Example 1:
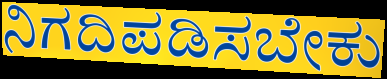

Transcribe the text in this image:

ನಿಗದಿಪಡಿಸಬೇಕು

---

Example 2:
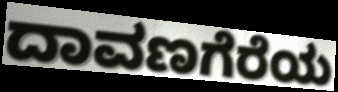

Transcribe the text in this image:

ದಾವಣಗೆರೆಯ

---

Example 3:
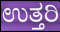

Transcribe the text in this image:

ಉತ್ತರಿ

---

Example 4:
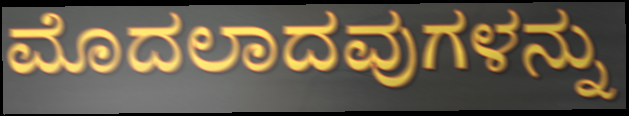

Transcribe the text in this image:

ಮೊದಲಾದವುಗಳನ್ನು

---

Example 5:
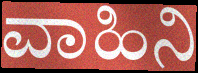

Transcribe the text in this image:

ವಾಹಿನಿ